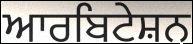
ਆਰਬਿਟੇਸ਼ਨ